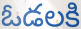
ఓడలకి